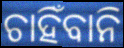
ଚାହିଁବାନି